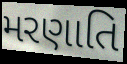
મરણાતિ